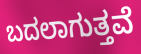
ಬದಲಾಗುತ್ತವೆ